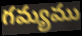
గమ్యము